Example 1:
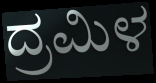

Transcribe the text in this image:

ದ್ರಮಿಳ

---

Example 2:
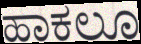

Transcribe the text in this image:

ಹಾಕಲೂ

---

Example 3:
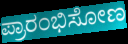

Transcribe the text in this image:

ಪ್ರಾರಂಭಿಸೋಣ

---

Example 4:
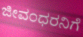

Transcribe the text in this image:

ಜೀವಂಧರನಿಗೆ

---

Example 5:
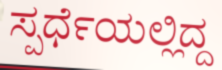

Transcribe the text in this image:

ಸ್ಪರ್ಧೆಯಲ್ಲಿದ್ದ